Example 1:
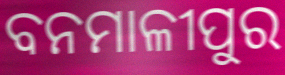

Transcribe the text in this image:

ବନମାଳୀପୁର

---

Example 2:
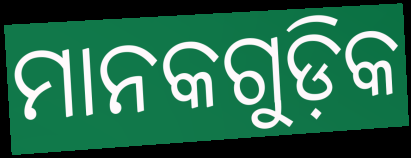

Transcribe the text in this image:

ମାନକଗୁଡ଼ିକ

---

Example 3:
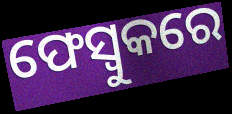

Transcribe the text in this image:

ଫେସ୍ବୁକରେ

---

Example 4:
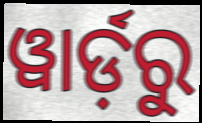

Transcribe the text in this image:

ୱାର୍ଡ଼ରୁ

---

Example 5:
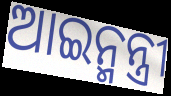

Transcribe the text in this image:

ଆଇନ୍ମନ୍ତ୍ରୀ